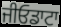
ਜੀਓਡਾਟਾ